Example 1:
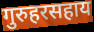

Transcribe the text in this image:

गुरुहरसहाय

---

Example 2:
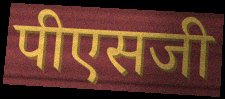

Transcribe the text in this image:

पीएसजी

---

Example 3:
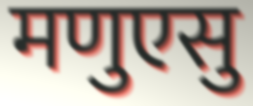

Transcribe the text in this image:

मणुएसु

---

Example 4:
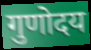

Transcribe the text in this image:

गुणोदय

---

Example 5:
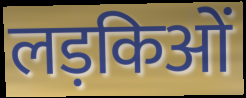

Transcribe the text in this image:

लड़किओं